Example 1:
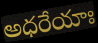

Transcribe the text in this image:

అధరేయాః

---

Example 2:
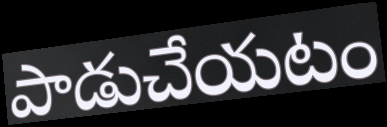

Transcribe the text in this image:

పాడుచేయటం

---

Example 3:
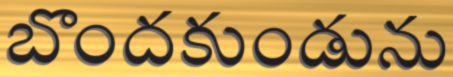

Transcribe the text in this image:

బొందకుండును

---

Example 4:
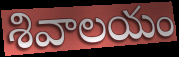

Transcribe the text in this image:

శివాలయం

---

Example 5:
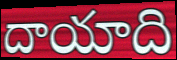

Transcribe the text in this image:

దాయాది